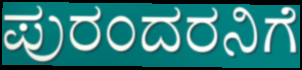
ಪುರಂದರನಿಗೆ